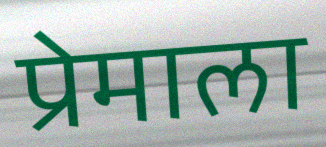
प्रेमाला